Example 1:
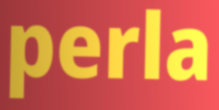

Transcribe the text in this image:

perla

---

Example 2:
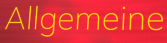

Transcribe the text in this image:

Allgemeine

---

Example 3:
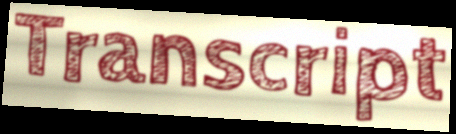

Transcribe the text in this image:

Transcript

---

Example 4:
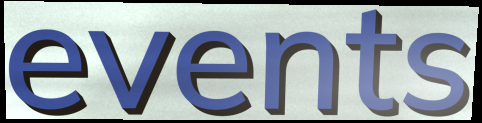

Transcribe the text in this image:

events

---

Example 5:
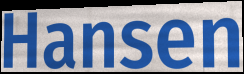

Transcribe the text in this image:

Hansen